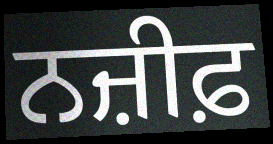
ਨਜ਼ੀਫ਼